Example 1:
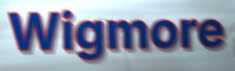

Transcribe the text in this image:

Wigmore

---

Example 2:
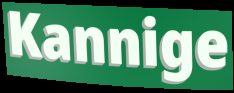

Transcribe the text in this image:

Kannige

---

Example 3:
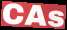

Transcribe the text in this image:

CAs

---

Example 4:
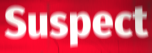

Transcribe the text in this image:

Suspect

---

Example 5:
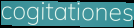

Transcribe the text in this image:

cogitationes